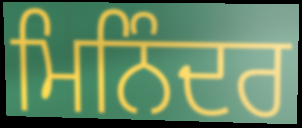
ਮਿਨਿੰਦਰ